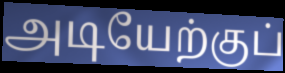
அடியேற்குப்